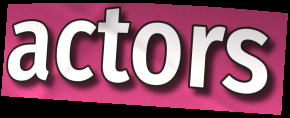
actors